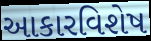
આકારવિશેષ